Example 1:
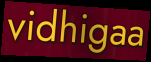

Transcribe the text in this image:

vidhigaa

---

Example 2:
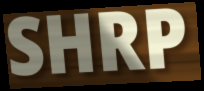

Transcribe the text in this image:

SHRP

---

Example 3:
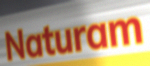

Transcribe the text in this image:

Naturam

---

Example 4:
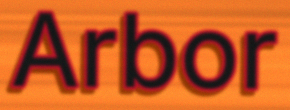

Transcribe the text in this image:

Arbor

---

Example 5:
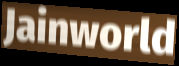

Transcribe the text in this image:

Jainworld